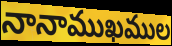
నానాముఖముల